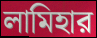
লামিহার